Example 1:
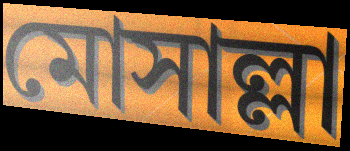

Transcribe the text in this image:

মোসাল্লা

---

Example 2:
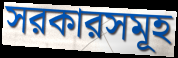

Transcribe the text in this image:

সরকারসমূহ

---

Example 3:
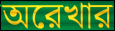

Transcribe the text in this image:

অরেখার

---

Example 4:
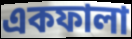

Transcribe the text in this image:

একফালা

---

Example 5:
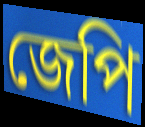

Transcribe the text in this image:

জেপি